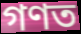
গণত